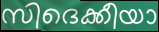
സിദെക്കീയാ